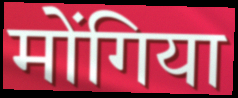
मोंगिया